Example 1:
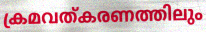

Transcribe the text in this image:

ക്രമവത്കരണത്തിലും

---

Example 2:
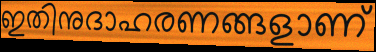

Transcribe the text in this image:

ഇതിനുദാഹരണങ്ങളാണ്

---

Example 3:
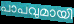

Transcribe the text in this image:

പാപവുമായി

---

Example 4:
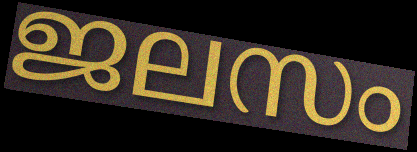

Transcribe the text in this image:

ജലസം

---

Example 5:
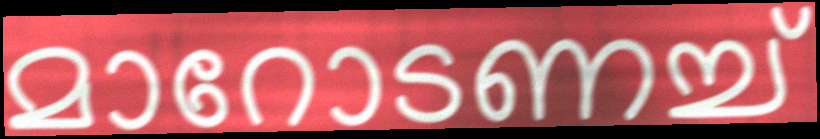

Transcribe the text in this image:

മാറോടണച്ച്